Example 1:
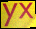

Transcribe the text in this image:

yx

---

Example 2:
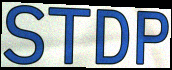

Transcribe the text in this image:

STDP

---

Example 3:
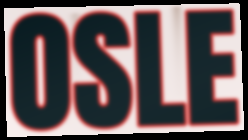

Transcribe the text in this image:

OSLE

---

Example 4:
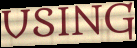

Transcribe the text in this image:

USING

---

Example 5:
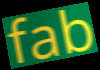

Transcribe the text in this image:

fab